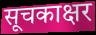
सूचकाक्षर